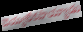
చెయ్యలేకపొయ్యాడు